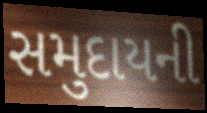
સમુદાયની